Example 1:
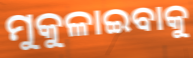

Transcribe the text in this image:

ମୁକୁଳାଇବାକୁ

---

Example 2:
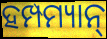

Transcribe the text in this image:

ହମ୍ପମ୍ୟାନ୍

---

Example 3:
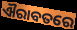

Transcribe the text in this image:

ଐରାବତରେ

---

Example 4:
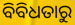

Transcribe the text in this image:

ବିବିଧତାରୁ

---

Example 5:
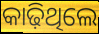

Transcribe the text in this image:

କାଢ଼ିଥିଲେ